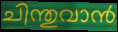
ചിന്തുവാൻ